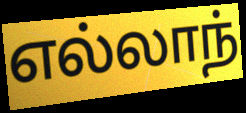
எல்லாந்